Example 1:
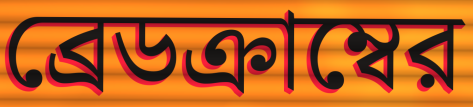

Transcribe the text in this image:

ব্রেডক্রাম্বের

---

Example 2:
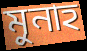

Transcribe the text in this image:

মুনাহ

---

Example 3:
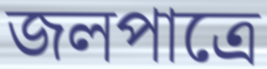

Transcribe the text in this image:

জলপাত্রে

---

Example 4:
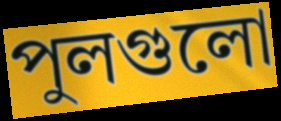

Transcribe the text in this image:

পুলগুলো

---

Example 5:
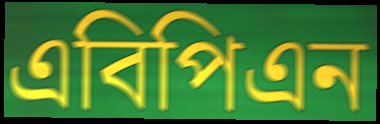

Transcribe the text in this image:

এবিপিএন